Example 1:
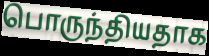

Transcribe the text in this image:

பொருந்தியதாக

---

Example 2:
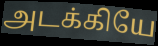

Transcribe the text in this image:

அடக்கியே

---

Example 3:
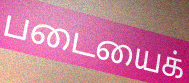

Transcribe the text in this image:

படையைக்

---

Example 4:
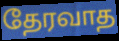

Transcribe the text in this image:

தேரவாத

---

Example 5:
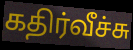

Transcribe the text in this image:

கதிர்வீச்சு